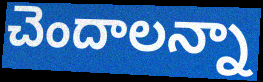
చెందాలన్నా